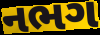
નભગ